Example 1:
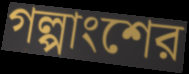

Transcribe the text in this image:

গল্পাংশের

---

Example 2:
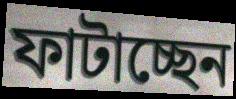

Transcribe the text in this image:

ফাটাচ্ছেন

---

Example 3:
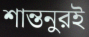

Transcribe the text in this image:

শান্তনুরই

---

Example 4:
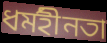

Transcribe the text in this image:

ধর্মহীনতা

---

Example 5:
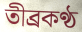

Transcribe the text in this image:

তীব্রকণ্ঠ